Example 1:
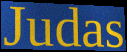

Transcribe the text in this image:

Judas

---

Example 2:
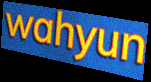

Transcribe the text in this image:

wahyun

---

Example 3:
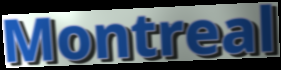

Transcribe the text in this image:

Montreal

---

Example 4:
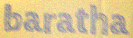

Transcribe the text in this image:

baratha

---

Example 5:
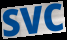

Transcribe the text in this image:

SVC